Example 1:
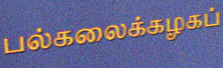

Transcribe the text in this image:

பல்கலைக்கழகப்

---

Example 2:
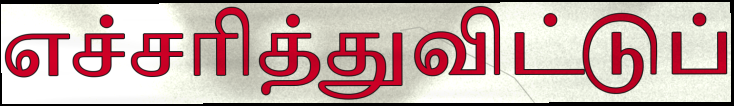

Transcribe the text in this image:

எச்சரித்துவிட்டுப்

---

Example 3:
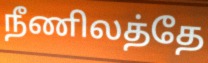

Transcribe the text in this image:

நீணிலத்தே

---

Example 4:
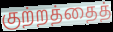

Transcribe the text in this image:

குற்றத்தைத்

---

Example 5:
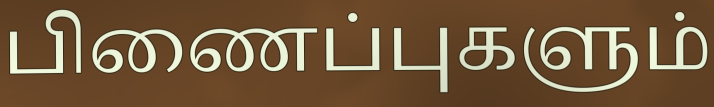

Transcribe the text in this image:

பிணைப்புகளும்